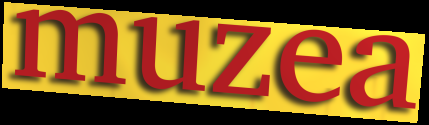
muzea